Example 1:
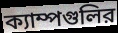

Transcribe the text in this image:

ক্যাম্পগুলির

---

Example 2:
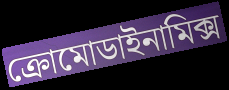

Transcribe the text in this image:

ক্রোমোডাইনামিক্স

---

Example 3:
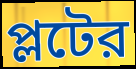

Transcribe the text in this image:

প্লটের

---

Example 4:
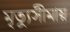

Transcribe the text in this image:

মৃত্যুসীমায়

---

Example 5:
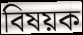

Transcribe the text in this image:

বিষয়ক